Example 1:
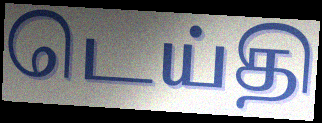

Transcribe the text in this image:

டெய்தி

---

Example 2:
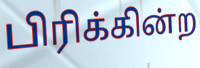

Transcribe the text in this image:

பிரிக்கின்ற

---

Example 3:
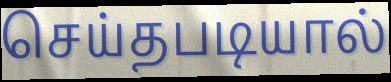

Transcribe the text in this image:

செய்தபடியால்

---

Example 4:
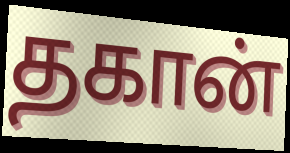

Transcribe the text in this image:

தகான்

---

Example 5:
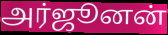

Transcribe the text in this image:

அர்ஜூனன்